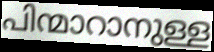
പിന്മാറാനുള്ള